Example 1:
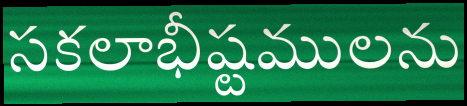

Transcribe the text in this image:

సకలాభీష్టములను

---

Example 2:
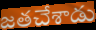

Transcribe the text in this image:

జతచేశాడు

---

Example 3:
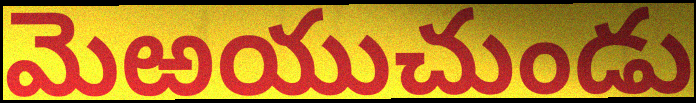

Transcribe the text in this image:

మెఱయుచుండు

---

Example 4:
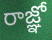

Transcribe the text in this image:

రాజ్ఞో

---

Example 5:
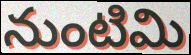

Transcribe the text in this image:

నుంటిమి